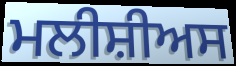
ਮਲੀਸ਼ੀਅਸ